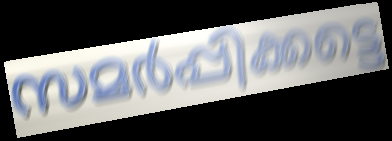
സമർപ്പിക്കട്ടെ